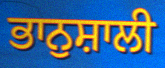
ਭਾਨੁਸ਼ਾਲੀ